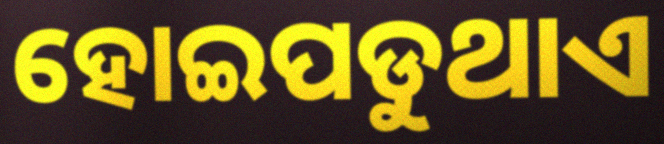
ହୋଇପଡୁଥାଏ